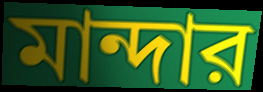
মান্দার